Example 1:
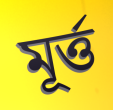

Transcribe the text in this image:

মূর্ত্ত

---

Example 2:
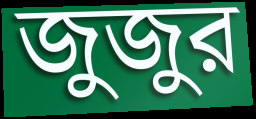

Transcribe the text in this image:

জুজুর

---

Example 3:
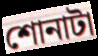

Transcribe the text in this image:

শোনাটা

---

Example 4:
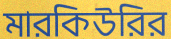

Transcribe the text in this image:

মারকিউরির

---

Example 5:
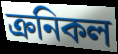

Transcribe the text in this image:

ক্রনিকল